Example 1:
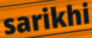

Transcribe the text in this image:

sarikhi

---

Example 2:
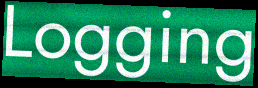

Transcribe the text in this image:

Logging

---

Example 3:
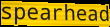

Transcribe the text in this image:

spearhead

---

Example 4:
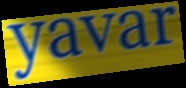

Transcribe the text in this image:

yavar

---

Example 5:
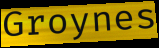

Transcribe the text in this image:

Groynes